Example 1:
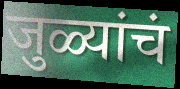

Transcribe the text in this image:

जुळ्यांचं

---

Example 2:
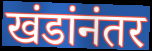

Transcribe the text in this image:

खंडांनंतर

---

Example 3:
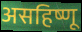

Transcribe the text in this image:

असहिष्णू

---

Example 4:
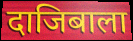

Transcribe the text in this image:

दाजिबाला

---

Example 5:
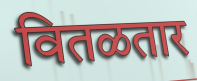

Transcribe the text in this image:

वितळतार